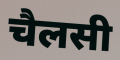
चैलसी